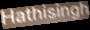
Hathisingh